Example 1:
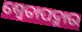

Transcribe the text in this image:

ଶ୍ଵେତାପଦ୍ମାର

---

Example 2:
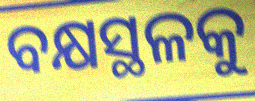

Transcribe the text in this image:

ବକ୍ଷସ୍ଥଳକୁ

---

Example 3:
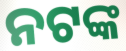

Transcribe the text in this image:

ନଟଙ୍କ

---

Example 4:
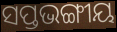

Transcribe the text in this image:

ସପ୍ତଭଙ୍ଗୀୟ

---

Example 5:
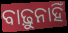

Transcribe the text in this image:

ବାଢ଼ୁନାହିଁ